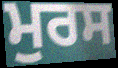
ਮੁਰਸ